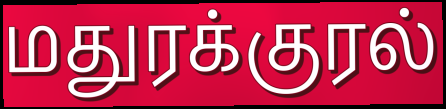
மதுரக்குரல்